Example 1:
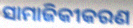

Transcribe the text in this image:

ସାମାଜିକୀକରଣ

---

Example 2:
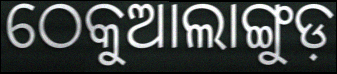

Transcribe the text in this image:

ଠେକୁଆଲାଙ୍ଗୁଡ଼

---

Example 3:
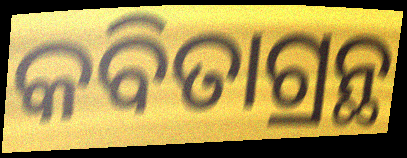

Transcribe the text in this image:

କବିତାଗ୍ରନ୍ଥ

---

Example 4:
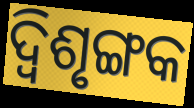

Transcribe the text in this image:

ଦ୍ବିଶୃଙ୍ଗକ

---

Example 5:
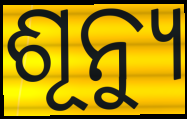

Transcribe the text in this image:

ଶୂନ୍ୟୁ